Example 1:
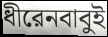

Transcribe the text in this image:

ধীরেনবাবুই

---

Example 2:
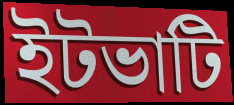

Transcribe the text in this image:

ইটভাটি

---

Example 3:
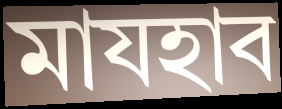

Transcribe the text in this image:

মাযহাব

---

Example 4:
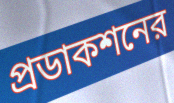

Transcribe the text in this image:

প্রডাকশনের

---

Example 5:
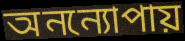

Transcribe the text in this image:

অনন্যোপায়